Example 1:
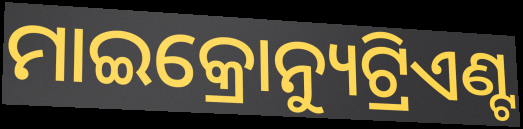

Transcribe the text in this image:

ମାଇକ୍ରୋନ୍ୟୁଟ୍ରିଏଣ୍ଟ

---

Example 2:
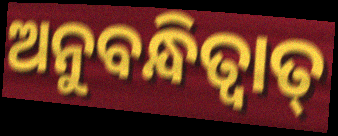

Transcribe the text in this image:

ଅନୁବନ୍ଧିତ୍ଵାତ୍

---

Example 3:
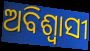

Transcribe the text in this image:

ଅବିଶ୍ଵାସୀ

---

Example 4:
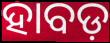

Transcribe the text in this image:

ହାବଡ଼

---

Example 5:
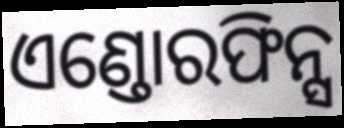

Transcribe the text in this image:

ଏଣ୍ଡୋରଫିନ୍ସ